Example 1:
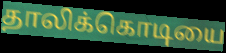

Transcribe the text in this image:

தாலிக்கொடியை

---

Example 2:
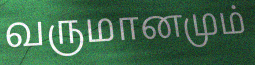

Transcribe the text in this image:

வருமானமும்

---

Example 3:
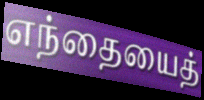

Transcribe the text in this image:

எந்தையைத்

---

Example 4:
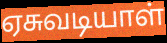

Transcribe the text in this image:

ஏசுவடியாள்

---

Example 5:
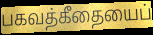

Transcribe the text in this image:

பகவத்கீதையைப்